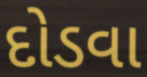
દોડવા